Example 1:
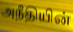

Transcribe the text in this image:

அநீதியின்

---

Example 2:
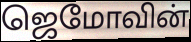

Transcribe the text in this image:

ஜெமோவின்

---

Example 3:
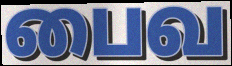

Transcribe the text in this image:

பைவ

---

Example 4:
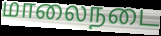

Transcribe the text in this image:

மாலைநடை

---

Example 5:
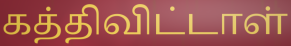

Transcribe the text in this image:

கத்திவிட்டாள்